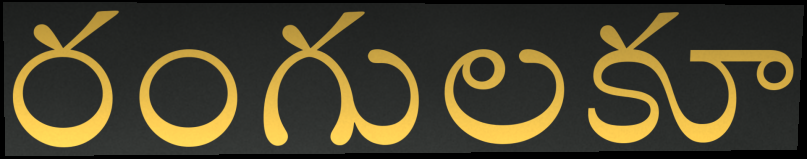
రంగులకూ